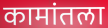
कामांतला